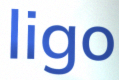
ligo